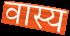
वास्य